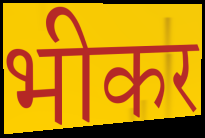
भीकर